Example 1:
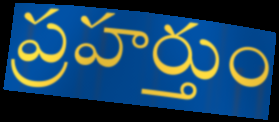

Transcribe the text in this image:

ప్రహర్తుం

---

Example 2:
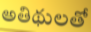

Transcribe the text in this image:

అతిథులతో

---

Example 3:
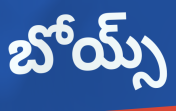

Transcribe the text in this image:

బోయ్స్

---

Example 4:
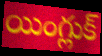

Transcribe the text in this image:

యింగ్లుక్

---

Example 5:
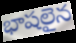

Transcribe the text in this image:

భాషలైన